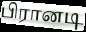
பிரானடி